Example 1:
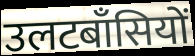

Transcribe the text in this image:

उलटबाँसियों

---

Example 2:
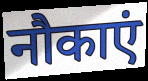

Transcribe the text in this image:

नौकाएं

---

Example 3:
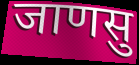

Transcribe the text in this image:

जाणसु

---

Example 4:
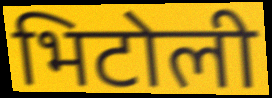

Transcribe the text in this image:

भिटोली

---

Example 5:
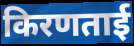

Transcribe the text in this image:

किरणताई